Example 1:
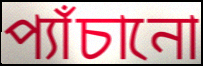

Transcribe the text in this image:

প্যাঁচানো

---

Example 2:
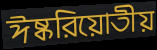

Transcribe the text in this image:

ঈষ্করিয়োতীয়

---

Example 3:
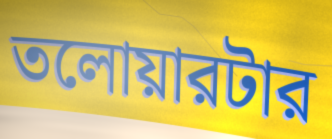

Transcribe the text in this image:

তলোয়ারটার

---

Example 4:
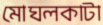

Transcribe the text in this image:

মোঘলকাটা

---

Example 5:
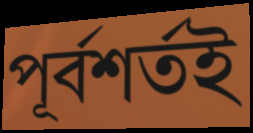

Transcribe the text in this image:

পূর্বশর্তই